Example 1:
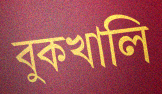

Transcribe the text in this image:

বুকখালি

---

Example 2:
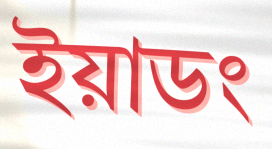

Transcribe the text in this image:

ইয়াডং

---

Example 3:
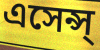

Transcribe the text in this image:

এসেন্স্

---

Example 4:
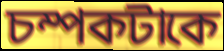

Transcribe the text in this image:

চম্পকটাকে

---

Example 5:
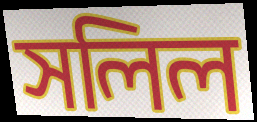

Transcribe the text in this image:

সলিল